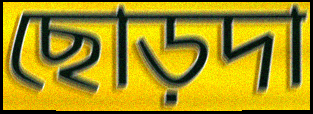
ছোড়দা